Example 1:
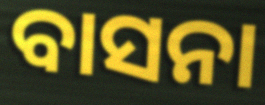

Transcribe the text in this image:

ବାସନା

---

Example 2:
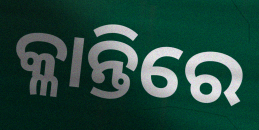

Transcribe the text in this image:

କ୍ଳାନ୍ତିରେ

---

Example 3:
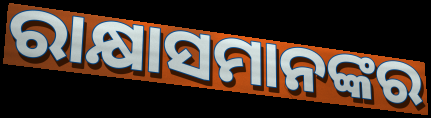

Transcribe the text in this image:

ରାକ୍ଷାସମାନଙ୍କର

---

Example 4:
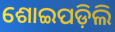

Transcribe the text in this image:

ଶୋଇପଡ଼ିଲି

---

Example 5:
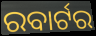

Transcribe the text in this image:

ରବାର୍ଟର